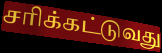
சரிக்கட்டுவது